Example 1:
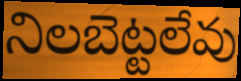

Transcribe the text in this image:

నిలబెట్టలేవు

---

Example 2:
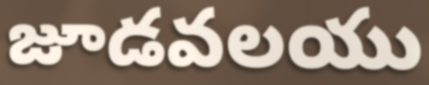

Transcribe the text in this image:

జూడవలయు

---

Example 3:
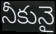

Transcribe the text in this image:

నీకునై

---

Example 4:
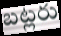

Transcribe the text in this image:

బట్లరు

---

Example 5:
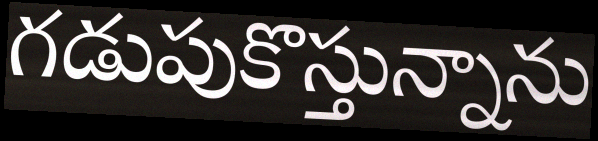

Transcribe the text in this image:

గడుపుకొస్తున్నాను